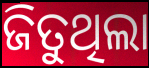
ଜିତୁଥିଲା